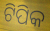
ଟିପିକ